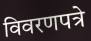
विवरणपत्रे